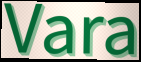
Vara